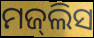
ମଜ୍‌ଲିସ